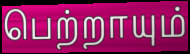
பெற்றாயும்